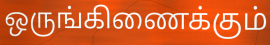
ஒருங்கிணைக்கும்